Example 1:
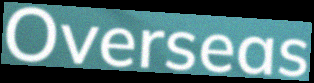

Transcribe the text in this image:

Overseas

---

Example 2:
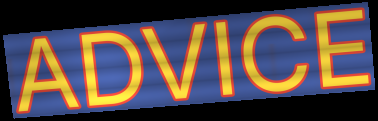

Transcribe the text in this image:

ADVICE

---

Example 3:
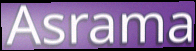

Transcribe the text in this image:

Asrama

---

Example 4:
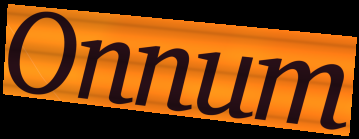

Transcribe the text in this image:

Onnum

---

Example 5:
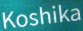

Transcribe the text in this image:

Koshika